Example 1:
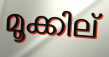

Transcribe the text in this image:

മൂക്കില്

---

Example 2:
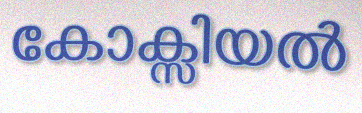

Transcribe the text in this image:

കോക്സിയൽ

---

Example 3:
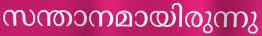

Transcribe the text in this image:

സന്താനമായിരുന്നു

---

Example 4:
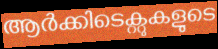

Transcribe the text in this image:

ആർക്കിടെക്റ്റുകളുടെ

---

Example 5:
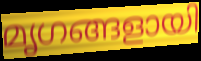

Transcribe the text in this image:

മൃഗങ്ങളായി